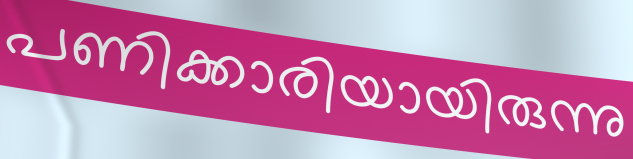
പണിക്കാരിയായിരുന്നു